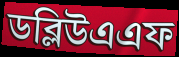
ডব্লিউএএফ